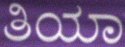
ತಿಯಾ